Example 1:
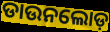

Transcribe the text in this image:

ଡାଉନଲୋଡ଼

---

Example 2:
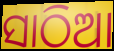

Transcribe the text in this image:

ସାଠିଆ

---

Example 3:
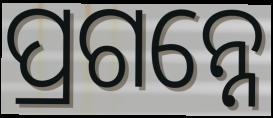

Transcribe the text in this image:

ପ୍ରଗନ୍ନେ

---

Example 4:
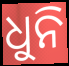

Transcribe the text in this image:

ଧୁନି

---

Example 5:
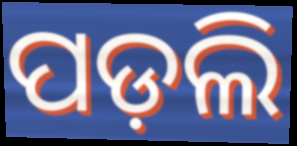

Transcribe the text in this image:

ପଡ଼ଲି